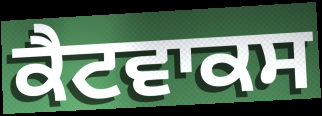
ਕੈਟਵਾਕਸ